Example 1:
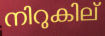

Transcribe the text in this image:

നിറുകില്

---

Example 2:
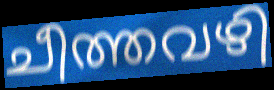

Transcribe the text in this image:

ചീത്തവഴി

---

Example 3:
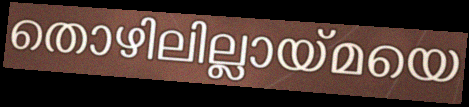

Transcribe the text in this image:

തൊഴിലില്ലായ്മയെ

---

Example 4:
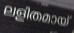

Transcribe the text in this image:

ലളിതമായ്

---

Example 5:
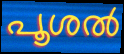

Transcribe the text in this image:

പൂശൽ